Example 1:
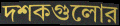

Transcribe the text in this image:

দশকগুলোর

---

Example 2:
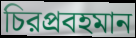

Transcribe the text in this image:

চিরপ্রবহমান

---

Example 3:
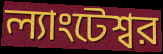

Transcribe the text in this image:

ল্যাংটেশ্বর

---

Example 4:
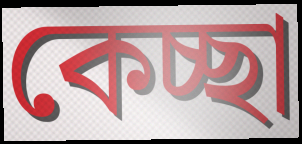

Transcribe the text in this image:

কেচ্ছা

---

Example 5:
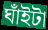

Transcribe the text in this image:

ঘাঁইটা